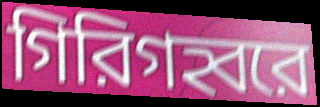
গিরিগহ্বরে